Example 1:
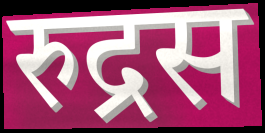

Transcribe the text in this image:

रुद्रस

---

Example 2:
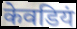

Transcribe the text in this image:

केवडियं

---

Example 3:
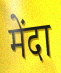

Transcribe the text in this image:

मेंदा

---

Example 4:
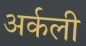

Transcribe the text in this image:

अर्कली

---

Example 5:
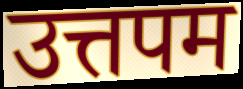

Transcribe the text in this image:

उत्तपम